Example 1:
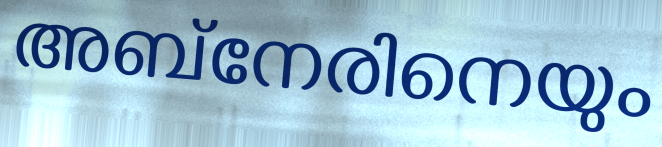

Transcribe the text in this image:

അബ്നേരിനെയും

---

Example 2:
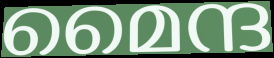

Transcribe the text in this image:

മൈന്ദ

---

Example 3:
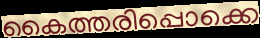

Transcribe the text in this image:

കൈത്തരിപ്പൊക്കെ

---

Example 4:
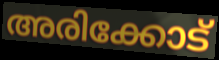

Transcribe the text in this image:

അരിക്കോട്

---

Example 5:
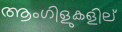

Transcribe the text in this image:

ആംഗിളുകളില്